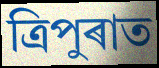
ত্ৰিপুৰাত